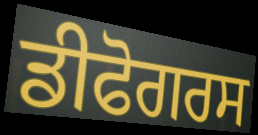
ਡੀਫੋਗਰਸ